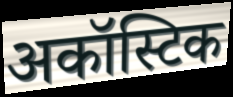
अकॉस्टिक